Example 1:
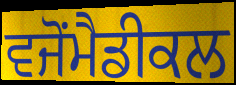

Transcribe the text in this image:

ਵਜੋਂਮੈਡੀਕਲ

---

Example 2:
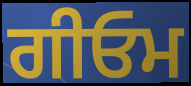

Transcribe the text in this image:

ਗੀਓਮ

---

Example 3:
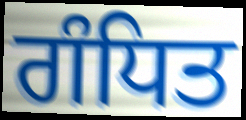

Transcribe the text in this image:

ਗੰਧਿਤ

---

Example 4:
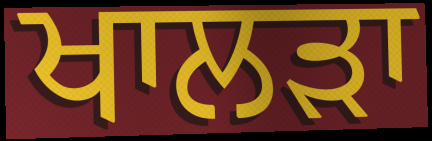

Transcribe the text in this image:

ਖਾਲੜਾ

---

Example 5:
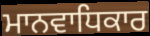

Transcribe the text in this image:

ਮਾਨਵਾਧਿਕਾਰ